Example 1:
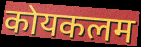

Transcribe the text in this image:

कोयकलम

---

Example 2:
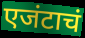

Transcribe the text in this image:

एजंटाचं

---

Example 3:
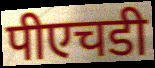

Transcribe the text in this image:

पीएचडी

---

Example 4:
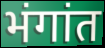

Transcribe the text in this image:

भंगांत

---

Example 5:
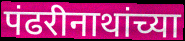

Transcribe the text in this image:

पंढरीनाथांच्या